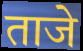
ताजे